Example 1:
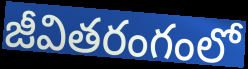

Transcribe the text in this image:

జీవితరంగంలో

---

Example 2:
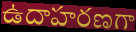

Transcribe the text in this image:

ఉదాహరణగా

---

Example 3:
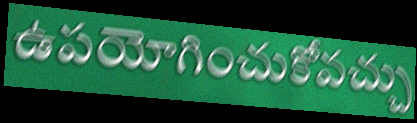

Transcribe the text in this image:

ఉపయోగించుకోవచ్చు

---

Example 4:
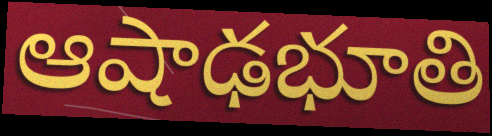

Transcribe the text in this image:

ఆషాఢభూతి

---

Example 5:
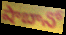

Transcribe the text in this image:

షాబానో